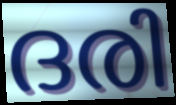
ദരി